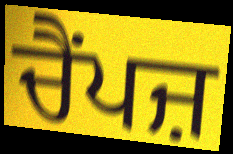
ਚੈਂਪਜ਼